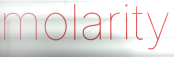
molarity